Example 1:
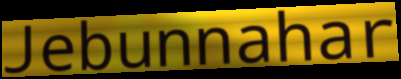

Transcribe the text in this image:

Jebunnahar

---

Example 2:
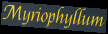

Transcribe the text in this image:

Myriophyllum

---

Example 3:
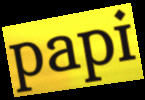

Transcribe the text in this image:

papi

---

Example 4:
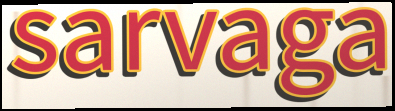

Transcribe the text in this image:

sarvaga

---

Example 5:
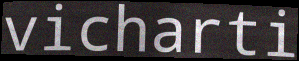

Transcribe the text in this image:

vicharti